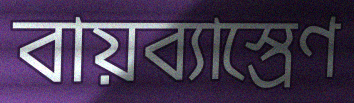
বায়ব্যাস্ত্রেণ